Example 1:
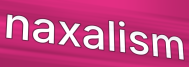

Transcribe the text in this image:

naxalism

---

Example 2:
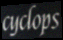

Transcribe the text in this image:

cyclops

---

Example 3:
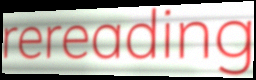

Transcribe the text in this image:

rereading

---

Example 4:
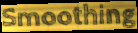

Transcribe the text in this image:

Smoothing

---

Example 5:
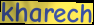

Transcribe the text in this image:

kharech